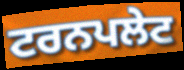
ਟਰਨਪਲੇਟ